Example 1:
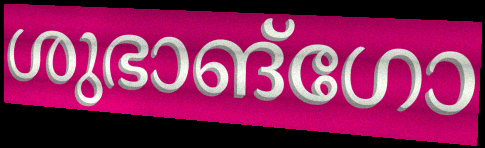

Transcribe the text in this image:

ശുഭാങ്ഗോ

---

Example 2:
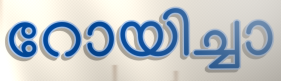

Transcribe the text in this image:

റോയിച്ചാ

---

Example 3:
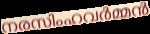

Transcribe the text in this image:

നരസിംഹവർമ്മൻ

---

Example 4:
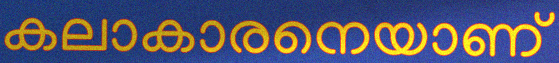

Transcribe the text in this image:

കലാകാരനെയാണ്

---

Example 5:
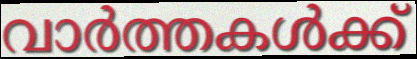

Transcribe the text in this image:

വാർത്തകൾക്ക്